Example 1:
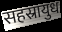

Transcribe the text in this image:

सहस्रायुध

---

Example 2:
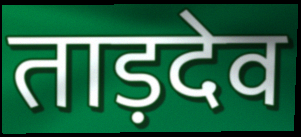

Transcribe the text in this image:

ताड़देव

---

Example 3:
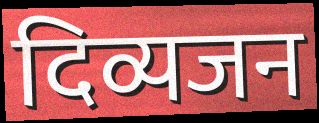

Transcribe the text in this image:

दिव्यजन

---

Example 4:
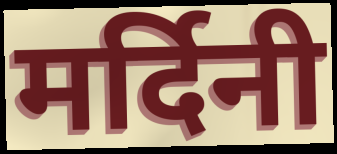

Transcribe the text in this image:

मर्दिनी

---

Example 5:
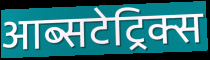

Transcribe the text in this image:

आब्सटेट्रिक्स